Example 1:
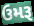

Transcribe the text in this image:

ઉમરૂ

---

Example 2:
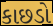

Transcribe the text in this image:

કાછડો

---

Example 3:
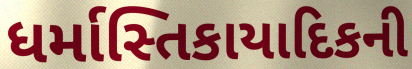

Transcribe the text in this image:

ધર્માસ્તિકાયાદિકની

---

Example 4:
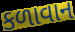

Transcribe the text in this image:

કળાવાન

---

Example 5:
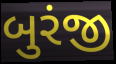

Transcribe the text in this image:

બુરંજી